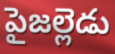
పైజల్లెడు